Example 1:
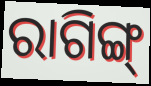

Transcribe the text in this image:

ରାଗିଙ୍ଗ୍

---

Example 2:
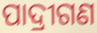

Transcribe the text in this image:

ପାଦ୍ରୀଗଣ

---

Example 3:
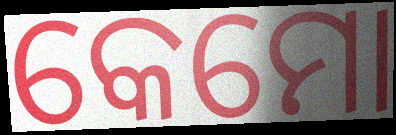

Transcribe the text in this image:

କେମୋ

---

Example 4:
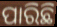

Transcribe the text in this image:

ପାରିଛି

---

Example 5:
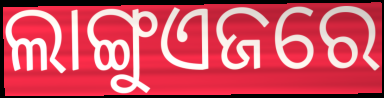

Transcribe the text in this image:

ଲାଙ୍ଗୁଏଜରେ